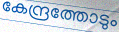
കേന്ദ്രത്തോടും